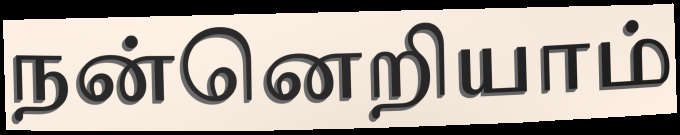
நன்னெறியாம்